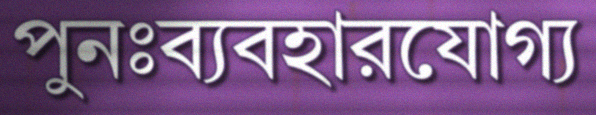
পুনঃব্যবহারযোগ্য